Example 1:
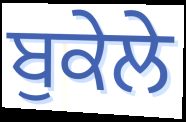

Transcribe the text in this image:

ਬੁਕੇਲੇ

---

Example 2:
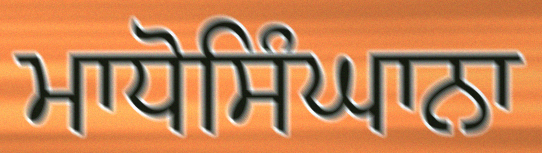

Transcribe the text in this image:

ਮਾਧੋਸਿੰਘਾਨਾ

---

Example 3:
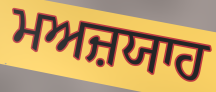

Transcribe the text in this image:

ਮਅਜ਼ਯਾਹ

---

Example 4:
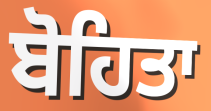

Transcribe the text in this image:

ਬੋਹਿਤਾ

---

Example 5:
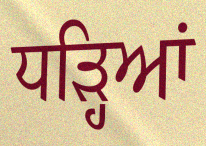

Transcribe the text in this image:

ਧੜ੍ਹਿਆਂ